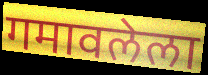
गमावलेला